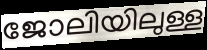
ജോലിയിലുള്ള